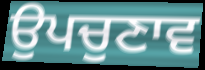
ਉਪਚੁਣਾਵ